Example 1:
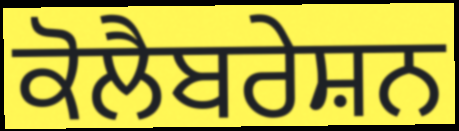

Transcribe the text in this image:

ਕੋਲੈਬਰੇਸ਼ਨ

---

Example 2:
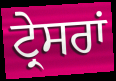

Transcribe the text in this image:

ਟ੍ਰੇਸਰਾਂ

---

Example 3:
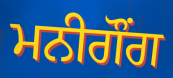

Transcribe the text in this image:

ਮਨੀਗੌਂਗ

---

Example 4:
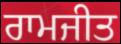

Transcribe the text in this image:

ਰਾਮਜੀਤ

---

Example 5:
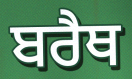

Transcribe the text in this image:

ਬਰੈਥ